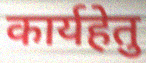
कार्यहेतु